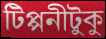
টিপ্পনীটুকু